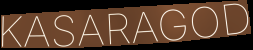
KASARAGOD